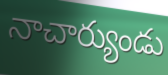
నాచార్యుండు